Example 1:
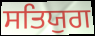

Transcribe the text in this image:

ਸਤਿਯੁਗ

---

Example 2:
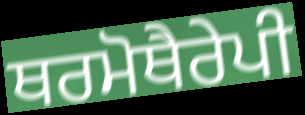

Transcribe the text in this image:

ਥਰਮੋਥੈਰੇਪੀ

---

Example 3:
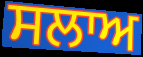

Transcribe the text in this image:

ਸਲਾਅ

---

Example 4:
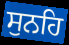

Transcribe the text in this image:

ਸੁਨਹਿ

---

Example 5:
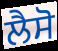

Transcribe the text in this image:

ਲੈਸੋ